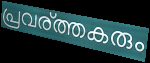
പ്രവര്ത്തകരും